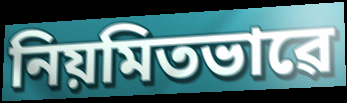
নিয়মিতভাৱে